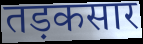
तड़कसार